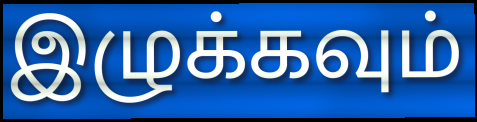
இழுக்கவும்